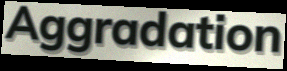
Aggradation